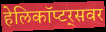
हेलिकॉप्टर्सवर